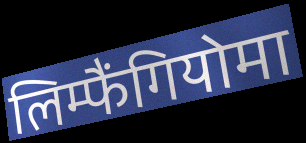
लिम्फैंगियोमा